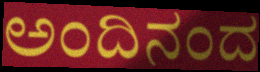
ಅಂದಿನಂದ